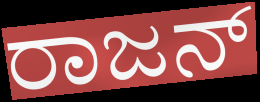
ರಾಜನ್